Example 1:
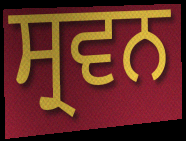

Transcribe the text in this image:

ਸ੍ਰਵਨ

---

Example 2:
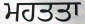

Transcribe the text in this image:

ਮਹਤਤਾ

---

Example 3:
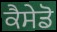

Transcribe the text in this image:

ਕੈਸੇਡੋ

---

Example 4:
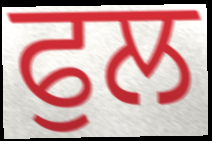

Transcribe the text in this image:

ਫੁਲ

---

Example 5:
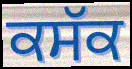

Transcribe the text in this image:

ਕਸੱਕ